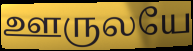
ஊருலயே